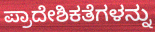
ಪ್ರಾದೇಶಿಕತೆಗಳನ್ನು